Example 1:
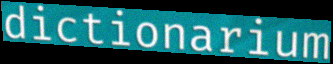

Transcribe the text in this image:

dictionarium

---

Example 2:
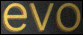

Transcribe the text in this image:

evo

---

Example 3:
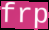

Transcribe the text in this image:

frp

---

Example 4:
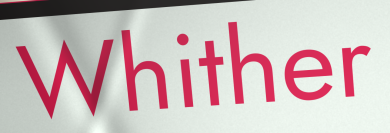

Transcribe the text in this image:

Whither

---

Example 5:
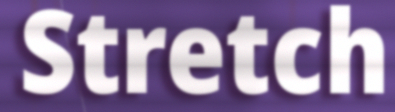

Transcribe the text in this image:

Stretch